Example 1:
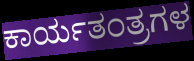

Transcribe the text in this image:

ಕಾರ್ಯತಂತ್ರಗಳ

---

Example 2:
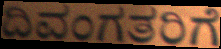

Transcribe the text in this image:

ದಿವಂಗತರಿಗೆ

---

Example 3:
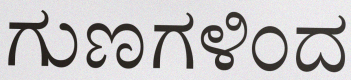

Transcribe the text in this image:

ಗುಣಗಳಿಂದ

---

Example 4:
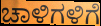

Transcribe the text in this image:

ಚಾಳಿಗಳಿಗೆ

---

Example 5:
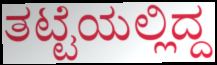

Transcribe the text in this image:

ತಟ್ಟೆಯಲ್ಲಿದ್ದ